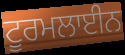
ਟੂਰਮਲਾਈਨ